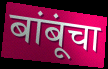
बांबूंचा